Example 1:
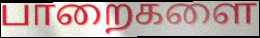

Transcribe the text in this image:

பாறைகளை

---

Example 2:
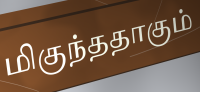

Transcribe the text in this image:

மிகுந்ததாகும்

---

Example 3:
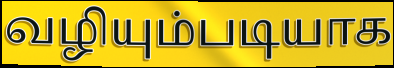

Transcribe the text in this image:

வழியும்படியாக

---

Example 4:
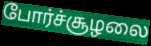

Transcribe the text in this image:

போர்ச்சூழலை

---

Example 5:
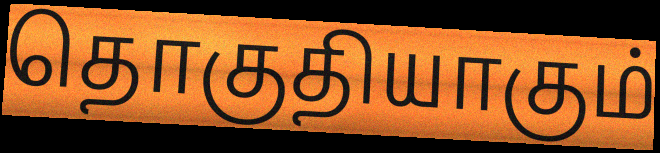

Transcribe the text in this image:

தொகுதியாகும்